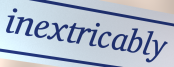
inextricably